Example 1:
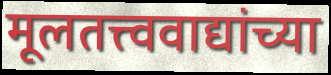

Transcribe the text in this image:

मूलतत्त्ववाद्यांच्या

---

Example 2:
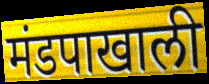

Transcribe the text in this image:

मंडपाखाली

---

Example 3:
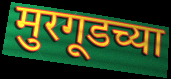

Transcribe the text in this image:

मुरगूडच्या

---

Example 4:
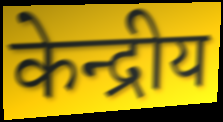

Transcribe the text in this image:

केन्द्रीय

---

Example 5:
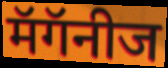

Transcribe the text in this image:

मॅगॅनीज